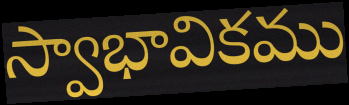
స్వాభావికము